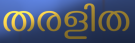
തരളിത